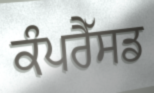
ਕੰਪਰੈੱਸਡ